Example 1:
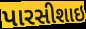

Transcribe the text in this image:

પારસીશાઇ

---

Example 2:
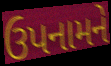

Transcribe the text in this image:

ઉપનામને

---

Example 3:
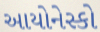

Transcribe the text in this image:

આયોનેસ્કો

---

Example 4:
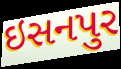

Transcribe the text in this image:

ઇસનપુર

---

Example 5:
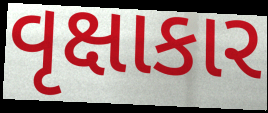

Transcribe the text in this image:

વૃક્ષાકાર